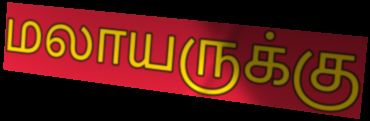
மலாயருக்கு